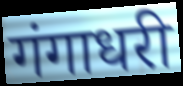
गंगाधरी